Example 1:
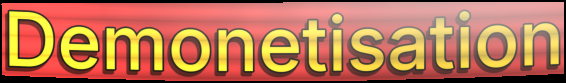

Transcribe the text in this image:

Demonetisation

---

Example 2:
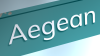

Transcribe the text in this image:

Aegean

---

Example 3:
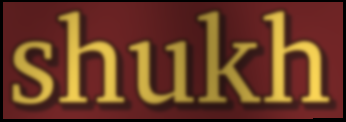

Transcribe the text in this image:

shukh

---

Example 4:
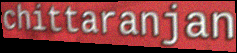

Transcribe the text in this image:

chittaranjan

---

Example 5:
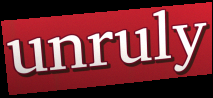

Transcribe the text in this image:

unruly